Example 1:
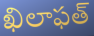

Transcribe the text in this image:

ఖిలాఫత్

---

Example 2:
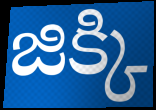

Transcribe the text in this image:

జిక్కి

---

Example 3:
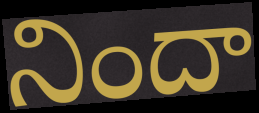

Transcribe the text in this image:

నిందా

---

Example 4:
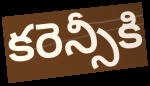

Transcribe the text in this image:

కరెన్సీకి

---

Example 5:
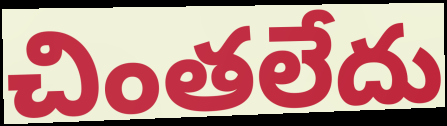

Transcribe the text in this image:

చింతలేదు